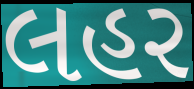
લહર